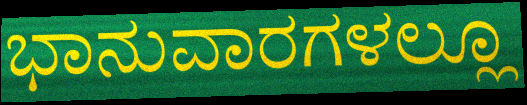
ಭಾನುವಾರಗಳಲ್ಲೂ